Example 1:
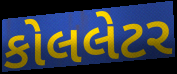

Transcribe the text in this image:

કોલલેટર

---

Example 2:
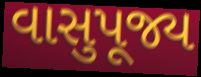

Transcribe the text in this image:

વાસુપૂજ્ય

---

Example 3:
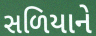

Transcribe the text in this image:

સળિયાને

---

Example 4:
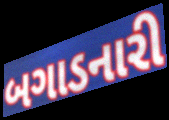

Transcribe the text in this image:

બગાડનારી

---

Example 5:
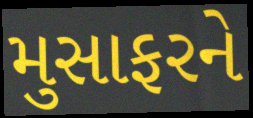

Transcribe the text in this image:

મુસાફરને